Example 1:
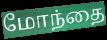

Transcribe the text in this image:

மோந்தை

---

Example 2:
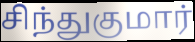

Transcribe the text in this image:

சிந்துகுமார்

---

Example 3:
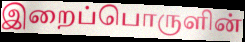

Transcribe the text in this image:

இறைப்பொருளின்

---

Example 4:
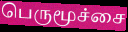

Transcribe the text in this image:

பெருமூச்சை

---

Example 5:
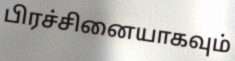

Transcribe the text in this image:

பிரச்சினையாகவும்